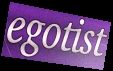
egotist